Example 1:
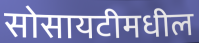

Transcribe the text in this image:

सोसायटीमधील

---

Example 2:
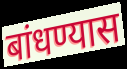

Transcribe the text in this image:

बांधण्यास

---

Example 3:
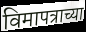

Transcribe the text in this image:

विमापत्राच्या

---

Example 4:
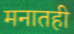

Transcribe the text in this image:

मनातही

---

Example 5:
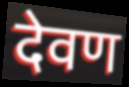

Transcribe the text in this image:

देवण